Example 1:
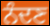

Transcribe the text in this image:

ਨੰਦਣ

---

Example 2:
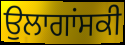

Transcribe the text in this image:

ਉਲਾਗਾਂਸਕੀ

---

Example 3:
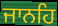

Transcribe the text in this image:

ਜਾਨਹਿ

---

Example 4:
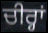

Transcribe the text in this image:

ਚੀਰ੍ਹਾਂ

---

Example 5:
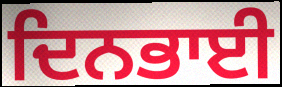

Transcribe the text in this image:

ਦਿਨਭਾਈ